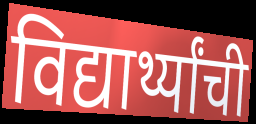
विद्यार्थ्‍यांची